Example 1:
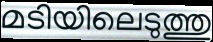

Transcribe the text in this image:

മടിയിലെടുത്തു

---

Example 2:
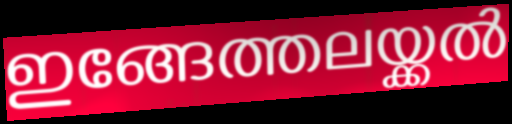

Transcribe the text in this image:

ഇങ്ങേത്തലയ്ക്കൽ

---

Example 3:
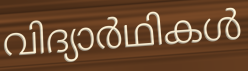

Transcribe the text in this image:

വിദ്യാർഥികൾ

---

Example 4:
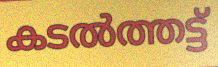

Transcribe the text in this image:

കടൽത്തട്ട്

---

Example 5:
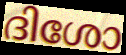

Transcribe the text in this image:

ദിശോ